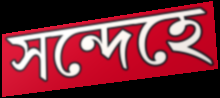
সন্দেহে